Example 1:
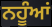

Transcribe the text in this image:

ਨਹੂੰਆਂ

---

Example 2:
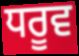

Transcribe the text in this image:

ਧਰੂਵ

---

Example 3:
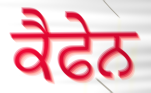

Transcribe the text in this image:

ਕੈਫੇਨ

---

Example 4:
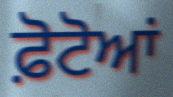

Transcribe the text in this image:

ਫ਼ੋਟੋਆਂ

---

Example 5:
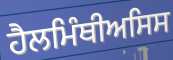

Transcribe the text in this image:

ਹੈਲਮਿੰਥੀਅਸਿਸ